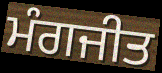
ਮੰਗਜੀਤ